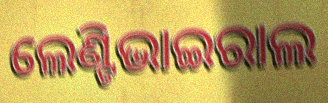
ଲେଣ୍ଟିଭାଇରାଲ